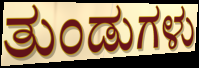
ತುಂಡುಗಳು